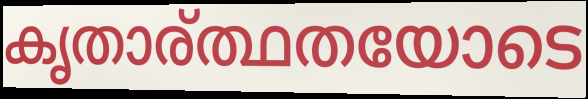
കൃതാര്ത്ഥതയോടെ